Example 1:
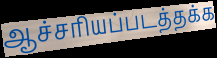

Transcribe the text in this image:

ஆச்சரியப்படத்தக்க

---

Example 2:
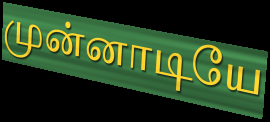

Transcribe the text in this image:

முன்னாடியே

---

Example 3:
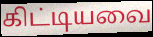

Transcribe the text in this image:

கிட்டியவை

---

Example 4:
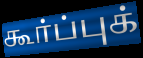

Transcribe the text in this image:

கூர்ப்புக்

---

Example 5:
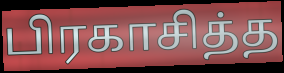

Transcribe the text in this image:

பிரகாசித்த